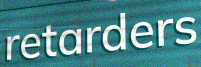
retarders